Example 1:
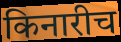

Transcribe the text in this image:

किनारीच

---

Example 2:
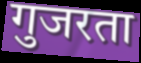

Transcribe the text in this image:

गुजरता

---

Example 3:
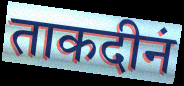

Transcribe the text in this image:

ताकदीनं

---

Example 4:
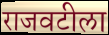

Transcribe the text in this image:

राजवटीला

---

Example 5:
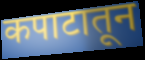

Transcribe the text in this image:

कपाटातून